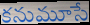
కనుమూసే